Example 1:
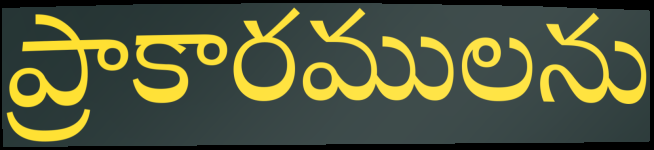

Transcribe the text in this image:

ప్రాకారములను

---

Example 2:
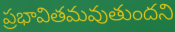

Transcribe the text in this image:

ప్రభావితమవుతుందని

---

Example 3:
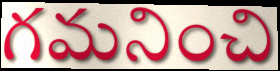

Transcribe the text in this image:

గమనించి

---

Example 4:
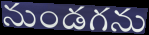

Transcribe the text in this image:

నుండగను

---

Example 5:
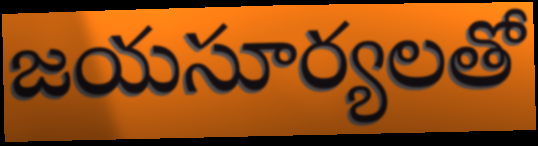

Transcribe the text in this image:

జయసూర్యలతో